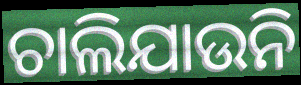
ଚାଲିଯାଉନି